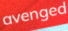
avenged